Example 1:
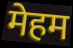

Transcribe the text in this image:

मेहम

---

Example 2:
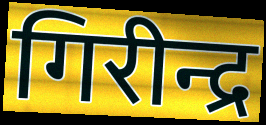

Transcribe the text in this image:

गिरीन्द्र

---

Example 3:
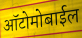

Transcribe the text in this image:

ऑटोमोबाईल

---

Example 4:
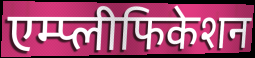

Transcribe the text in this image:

एम्प्लीफिकेशन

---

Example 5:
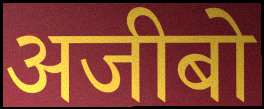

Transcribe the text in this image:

अजीबो